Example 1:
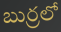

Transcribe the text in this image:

బుర్రలో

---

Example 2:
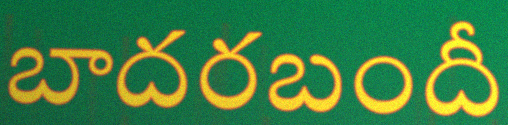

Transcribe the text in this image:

బాదరబందీ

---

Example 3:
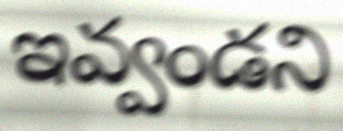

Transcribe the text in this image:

ఇవ్వండని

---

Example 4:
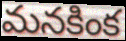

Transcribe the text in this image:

మనకింక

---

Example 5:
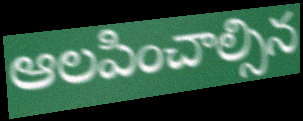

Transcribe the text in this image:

ఆలపించాల్సిన